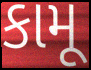
કામૂ